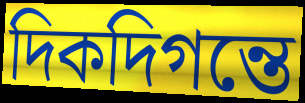
দিকদিগন্তে